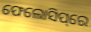
ଫେଲୋସିପ୍‌ରେ